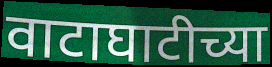
वाटाघाटीच्या